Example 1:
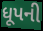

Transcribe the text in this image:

ધૂપની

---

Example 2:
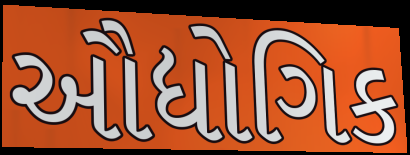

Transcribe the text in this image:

ઔદ્યોગિક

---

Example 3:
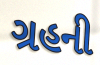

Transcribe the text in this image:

ગ્રહની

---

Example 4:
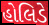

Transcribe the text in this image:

હોલિડે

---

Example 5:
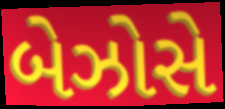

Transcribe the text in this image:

બેઝોસે